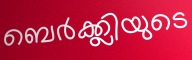
ബെർക്ക്ലിയുടെ